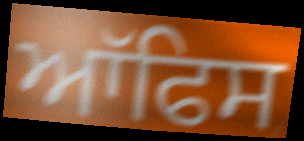
ਆੱਫਿਸ